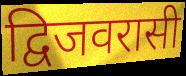
द्विजवरासी